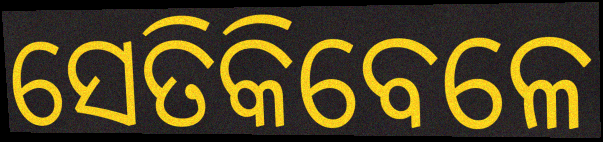
ସେତିକିବେଳେ